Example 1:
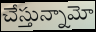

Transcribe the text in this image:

చేస్తున్నామో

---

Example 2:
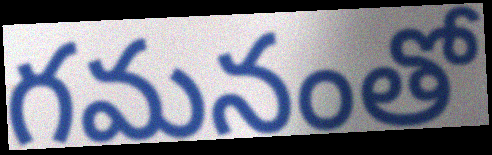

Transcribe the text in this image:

గమనంతో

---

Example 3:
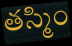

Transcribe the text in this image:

తస్మిం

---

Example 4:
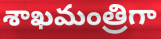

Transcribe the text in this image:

శాఖమంత్రిగా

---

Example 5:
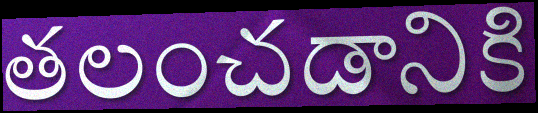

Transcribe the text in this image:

తలంచడానికి